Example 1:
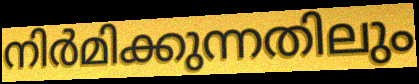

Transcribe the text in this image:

നിർമിക്കുന്നതിലും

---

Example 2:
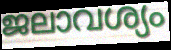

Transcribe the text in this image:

ജലാവശ്യം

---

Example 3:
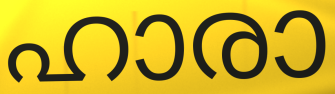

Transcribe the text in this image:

ഹാരാ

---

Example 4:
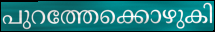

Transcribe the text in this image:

പുറത്തേക്കൊഴുകി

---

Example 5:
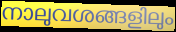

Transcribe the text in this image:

നാലുവശങ്ങളിലും